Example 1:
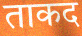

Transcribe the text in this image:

ताकद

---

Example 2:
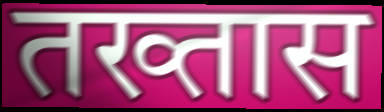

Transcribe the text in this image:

तख्तास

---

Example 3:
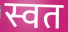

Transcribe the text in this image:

स्वत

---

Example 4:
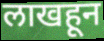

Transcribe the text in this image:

लाखहून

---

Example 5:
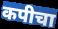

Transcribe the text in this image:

कपीचा